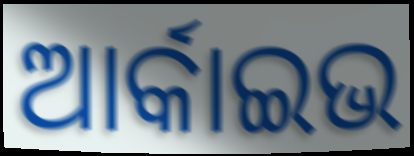
ଆର୍କାଇଭ